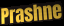
Prashne